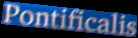
Pontificalis